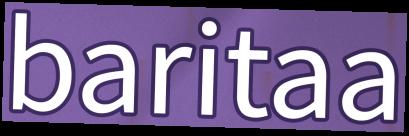
baritaa